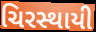
ચિરસ્થાયી